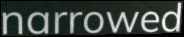
narrowed